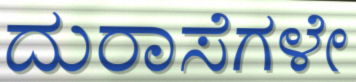
ದುರಾಸೆಗಳೇ